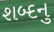
શબ્દનુ